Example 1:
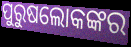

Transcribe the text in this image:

ପୁରୁଷଲୋକଙ୍କର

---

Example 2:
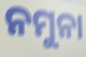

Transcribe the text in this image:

ନମୁନା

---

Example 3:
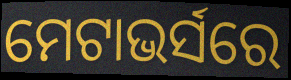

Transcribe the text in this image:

ମେଟାଭର୍ସରେ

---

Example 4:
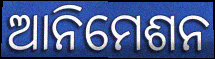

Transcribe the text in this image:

ଆନିମେଶନ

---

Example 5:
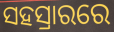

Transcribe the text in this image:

ସହସ୍ରାରରେ